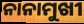
ନାନାମୁଖୀ